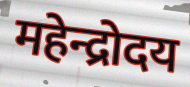
महेन्द्रोदय